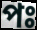
পঃ